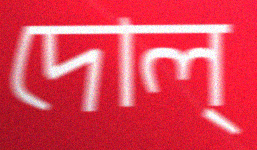
দোল্